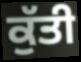
ਕੁੱਤੀ